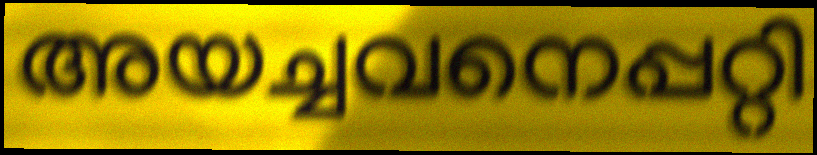
അയച്ചവനെപ്പറ്റി